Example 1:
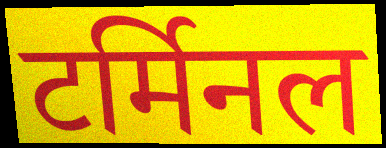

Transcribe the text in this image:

टर्मिनल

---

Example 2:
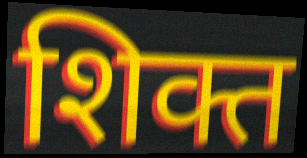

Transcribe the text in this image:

शिक्त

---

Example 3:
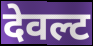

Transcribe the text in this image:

देवल्ट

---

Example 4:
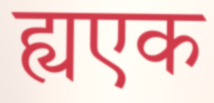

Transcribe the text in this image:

ह्यएक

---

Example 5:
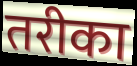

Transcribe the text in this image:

तरीका